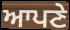
ਆਪਣੇ